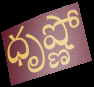
ధృష్ణో